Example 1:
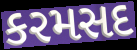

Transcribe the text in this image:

કરમસદ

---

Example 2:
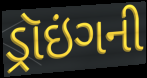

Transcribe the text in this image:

ડ્રૉઇંગની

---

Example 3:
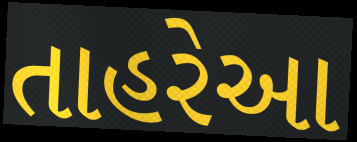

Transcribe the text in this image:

તાહરેઆ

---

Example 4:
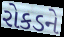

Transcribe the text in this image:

રોકડને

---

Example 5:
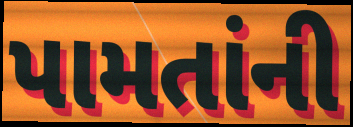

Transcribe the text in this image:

પામતાંની